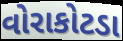
વોરાકોટડા